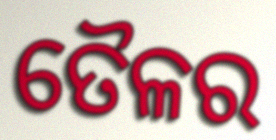
ତୈଳର